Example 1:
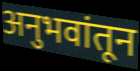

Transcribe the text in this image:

अनुभवांतून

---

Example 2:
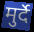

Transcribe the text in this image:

मुर्दे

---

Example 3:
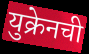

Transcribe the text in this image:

युक्रेनची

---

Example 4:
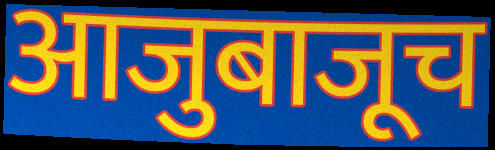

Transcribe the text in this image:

आजुबाजूच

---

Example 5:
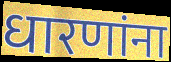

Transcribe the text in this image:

धारणांना